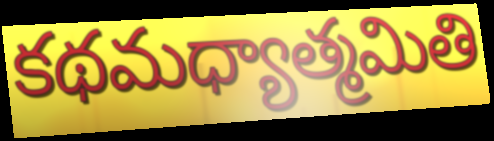
కథమధ్యాత్మమితి